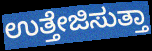
ಉತ್ತೇಜಿಸುತ್ತಾ